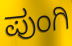
ಪುಂಗಿ